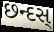
છન્દસ્